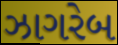
ઝાગરેબ